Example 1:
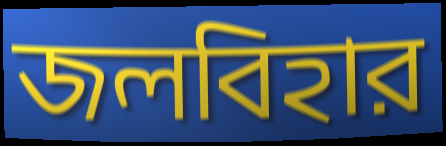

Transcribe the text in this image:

জলবিহার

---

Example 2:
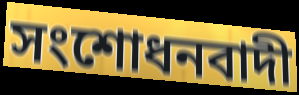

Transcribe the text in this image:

সংশোধনবাদী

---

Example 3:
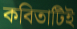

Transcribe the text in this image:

কবিতাটিই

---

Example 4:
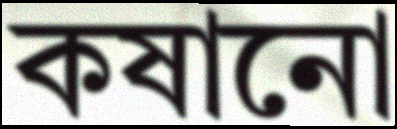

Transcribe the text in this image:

কষানো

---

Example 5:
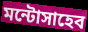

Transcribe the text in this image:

মন্টোসাহেব